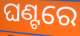
ଘଣ୍ଟରେ